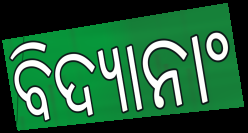
ବିଦ୍ୟାନାଂ